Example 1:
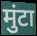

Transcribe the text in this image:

मुंटा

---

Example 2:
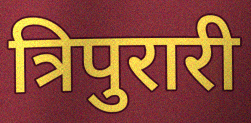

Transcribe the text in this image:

त्रिपुरारी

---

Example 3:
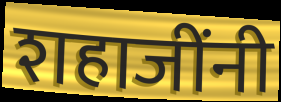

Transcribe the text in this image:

शहाजींनी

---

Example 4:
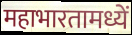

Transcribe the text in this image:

महाभारतामध्यें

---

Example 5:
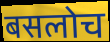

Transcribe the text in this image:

बसलोच